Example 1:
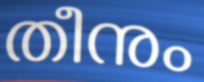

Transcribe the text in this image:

തീനും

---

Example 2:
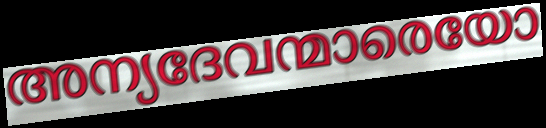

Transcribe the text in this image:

അന്യദേവന്മാരെയോ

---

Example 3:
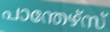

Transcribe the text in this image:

പാന്തേഴ്സ്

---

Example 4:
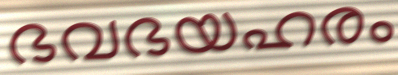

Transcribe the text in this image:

ഭവഭയഹരം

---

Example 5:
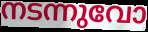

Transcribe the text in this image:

നടന്നുവോ